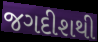
જગદીશથી